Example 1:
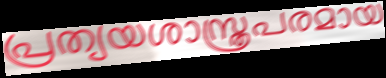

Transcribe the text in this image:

പ്രത്യയശാസ്ത്രപരമായ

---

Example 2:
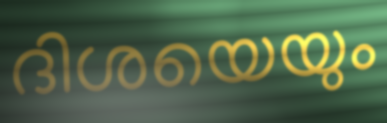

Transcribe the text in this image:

ദിശയെയും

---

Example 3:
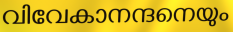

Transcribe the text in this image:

വിവേകാനന്ദനെയും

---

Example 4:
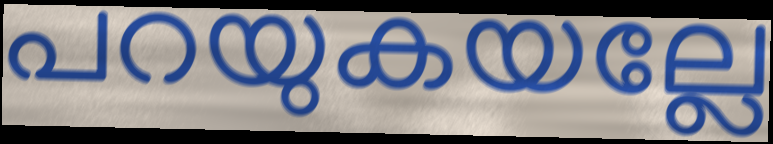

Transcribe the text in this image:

പറയുകയല്ലേ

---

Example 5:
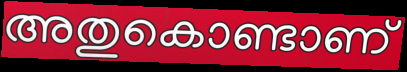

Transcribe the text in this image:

അതുകൊണ്ടാണ്